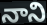
నాని